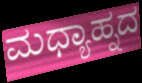
ಮಧ್ಯಾಹ್ನದ